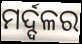
ମର୍ଦ୍ଦଳର